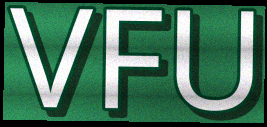
VFU